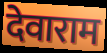
देवाराम